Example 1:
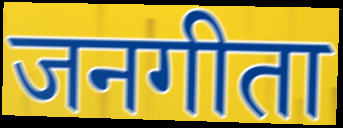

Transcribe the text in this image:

जनगीता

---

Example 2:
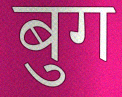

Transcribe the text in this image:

बुग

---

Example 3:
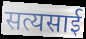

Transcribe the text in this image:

सत्यसाई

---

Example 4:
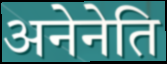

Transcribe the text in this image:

अनेनेति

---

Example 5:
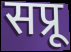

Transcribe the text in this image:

सप्रू